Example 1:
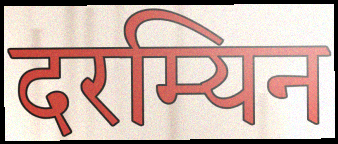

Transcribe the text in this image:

दरम्यिन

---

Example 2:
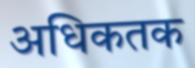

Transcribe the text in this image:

अधिकतक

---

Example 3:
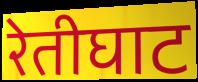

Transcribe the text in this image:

रेतीघाट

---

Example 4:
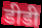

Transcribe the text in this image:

डीडी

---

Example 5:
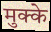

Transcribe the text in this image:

मुक्‍के